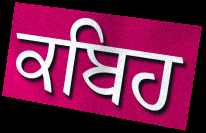
ਕਬਿਹ